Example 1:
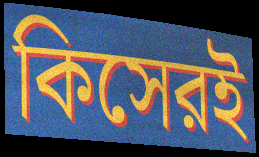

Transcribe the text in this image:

কিসেরই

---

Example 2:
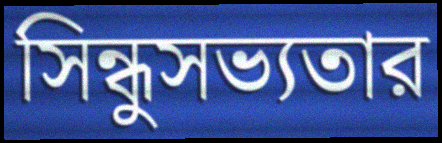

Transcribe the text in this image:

সিন্ধুসভ্যতার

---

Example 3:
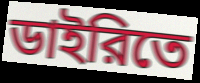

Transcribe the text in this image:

ডাইরিতে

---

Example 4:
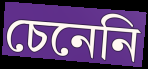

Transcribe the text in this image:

চেনেনি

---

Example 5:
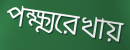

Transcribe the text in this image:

পক্ষ্মরেখায়